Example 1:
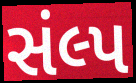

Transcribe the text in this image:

સંલ્પ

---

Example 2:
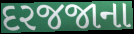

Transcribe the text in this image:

દરજજાના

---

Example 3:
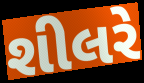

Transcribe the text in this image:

શીલરે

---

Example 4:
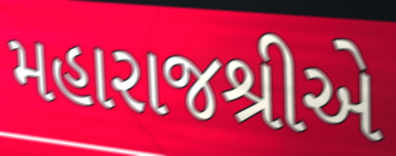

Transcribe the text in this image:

મહારાજશ્રીએ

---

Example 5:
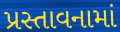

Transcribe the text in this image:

પ્રસ્તાવનામાં